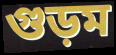
গুড়ম